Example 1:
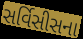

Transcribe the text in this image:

સર્વિસીસના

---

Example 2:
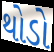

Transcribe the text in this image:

થોડો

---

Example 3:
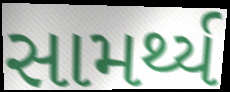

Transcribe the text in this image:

સામર્થ્ય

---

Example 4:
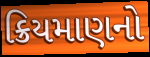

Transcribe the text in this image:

ક્રિયમાણનો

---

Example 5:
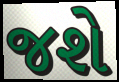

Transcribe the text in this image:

જશે